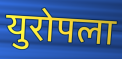
युरोपला